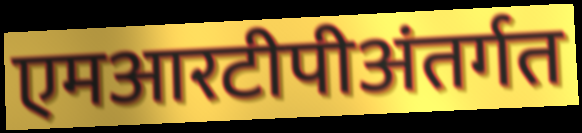
एमआरटीपीअंतर्गत